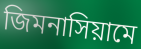
জিমনাসিয়ামে